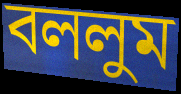
বললুম